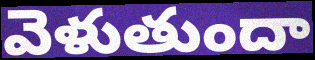
వెళుతుందా